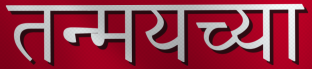
तन्मयच्या